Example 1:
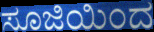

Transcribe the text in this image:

ಸೂಜಿಯಿಂದ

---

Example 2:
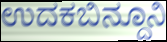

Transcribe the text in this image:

ಉದಕಬಿನ್ದೂನಿ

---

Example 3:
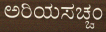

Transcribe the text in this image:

ಅರಿಯಸಚ್ಚಂ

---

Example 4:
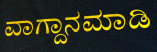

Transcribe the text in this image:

ವಾಗ್ದಾನಮಾಡಿ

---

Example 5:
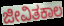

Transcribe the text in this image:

ಜೀವಿತಕಾಲ